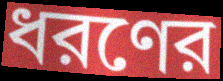
ধরণের